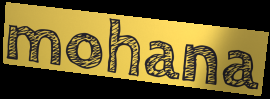
mohana